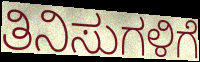
ತಿನಿಸುಗಳಿಗೆ